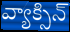
వ్యాక్సిన్